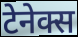
टेनेक्स